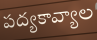
పద్యకావ్యాల